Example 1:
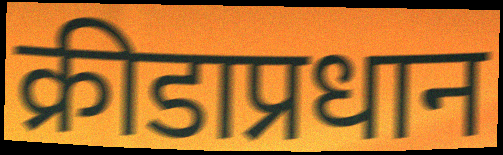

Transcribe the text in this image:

क्रीडाप्रधान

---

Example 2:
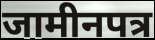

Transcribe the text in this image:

जामीनपत्र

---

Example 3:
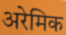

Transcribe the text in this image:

अरेमिक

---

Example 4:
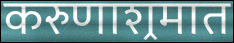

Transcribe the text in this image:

करुणाश्रमात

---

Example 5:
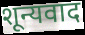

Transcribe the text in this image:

शून्यवाद